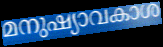
മനുഷ്യാവകാശ